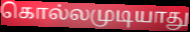
கொல்லமுடியாது